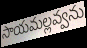
సాయమల్లవ్వను